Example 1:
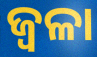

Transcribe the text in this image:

ଜ୍ଵଳା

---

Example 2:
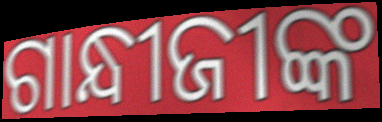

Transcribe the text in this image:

ଗାନ୍ଧୀଜୀଙ୍କ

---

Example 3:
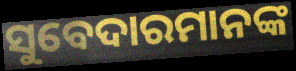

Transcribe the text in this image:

ସୁବେଦାରମାନଙ୍କ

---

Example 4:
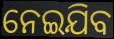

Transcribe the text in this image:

ନେଇଯିବ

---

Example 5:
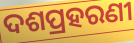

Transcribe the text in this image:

ଦଶପ୍ରହରଣୀ